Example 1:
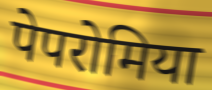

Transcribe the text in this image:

पेपरोमिया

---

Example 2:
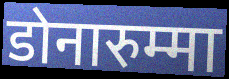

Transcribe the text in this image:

डोनारुम्मा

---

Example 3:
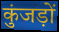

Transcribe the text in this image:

कुंजड़ों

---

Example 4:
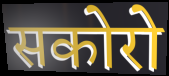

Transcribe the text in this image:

सकोरो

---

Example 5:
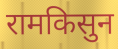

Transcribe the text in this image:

रामकिसुन